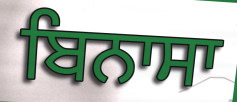
ਬਿਨਾਸਾ